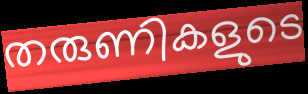
തരുണികളുടെ